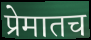
प्रेमातच